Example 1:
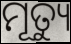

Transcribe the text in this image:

ମୂତ୍ୟୁ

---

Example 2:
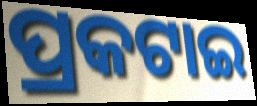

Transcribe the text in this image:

ପ୍ରକଟାଇ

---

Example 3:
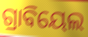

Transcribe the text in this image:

ଗ୍ରାବିୟେଲ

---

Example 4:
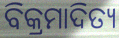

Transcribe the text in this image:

ବିକ୍ରମାଦିତ୍ୟ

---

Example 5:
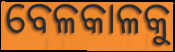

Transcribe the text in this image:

ବେଳକାଳକୁ